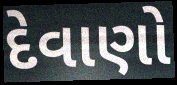
દેવાણો